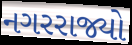
નગરરાજ્યો